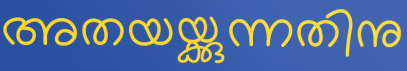
അതയയ്ക്കുന്നതിനു